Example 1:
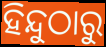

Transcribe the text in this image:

ହିନ୍ଦୁଠାରୁ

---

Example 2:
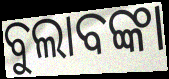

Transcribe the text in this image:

ବୁଲାବଙ୍କା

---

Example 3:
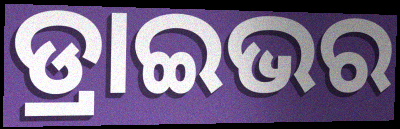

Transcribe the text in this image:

ଡ୍ରାଇଭର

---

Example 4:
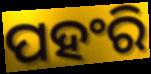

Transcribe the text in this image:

ପହଂରି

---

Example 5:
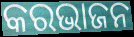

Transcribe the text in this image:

କରଭାଜନ